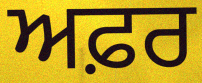
ਅਫ਼ਰ